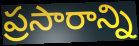
ప్రసారాన్ని